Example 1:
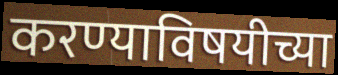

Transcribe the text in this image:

करण्याविषयीच्या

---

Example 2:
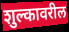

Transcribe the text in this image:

शुल्कावरील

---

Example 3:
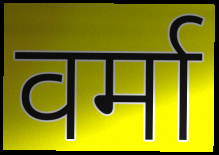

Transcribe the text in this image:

वर्मा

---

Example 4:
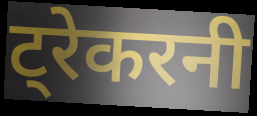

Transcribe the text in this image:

ट्रेकरनी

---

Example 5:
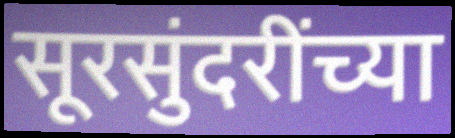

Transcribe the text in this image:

सूरसुंदरींच्या